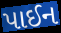
પાઈન